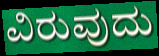
ವಿರುವುದು